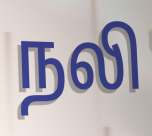
நலி